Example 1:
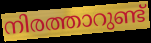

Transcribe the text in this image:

നിരത്താറുണ്ട്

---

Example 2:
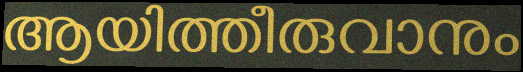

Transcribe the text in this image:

ആയിത്തീരുവാനും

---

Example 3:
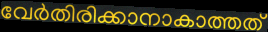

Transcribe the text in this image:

വേർതിരിക്കാനാകാത്തത്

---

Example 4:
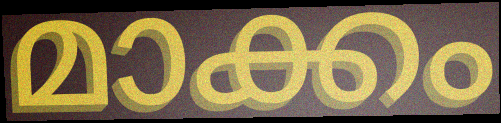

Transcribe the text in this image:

മാക്കം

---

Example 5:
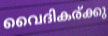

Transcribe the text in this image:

വൈദികര്ക്കു